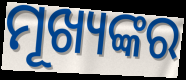
ମୂଖ୍ୟଙ୍କର